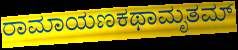
ರಾಮಾಯಣಕಥಾಮೃತಮ್